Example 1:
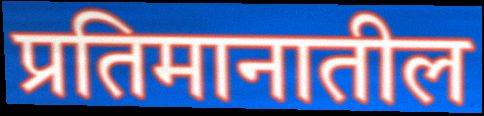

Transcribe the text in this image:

प्रतिमानातील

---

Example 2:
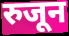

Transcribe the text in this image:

रुजून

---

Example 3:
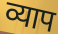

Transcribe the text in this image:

व्याप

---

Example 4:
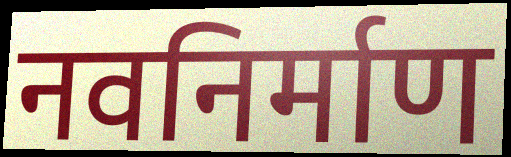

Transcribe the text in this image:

नवनिर्माण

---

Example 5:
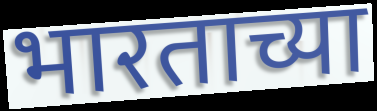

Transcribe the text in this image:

भारताच्या